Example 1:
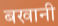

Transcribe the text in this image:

बखानी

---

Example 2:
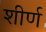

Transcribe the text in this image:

शीर्ण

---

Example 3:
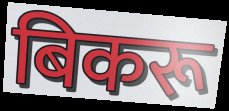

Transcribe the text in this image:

बिकरू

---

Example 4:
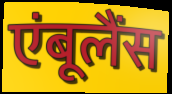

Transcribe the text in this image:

एंबूलैंस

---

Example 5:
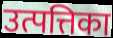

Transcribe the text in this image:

उत्पत्तिका